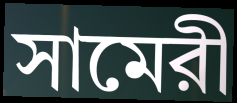
সামেরী